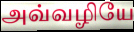
அவ்வழியே